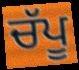
ਚੱਪੂ